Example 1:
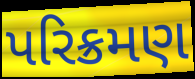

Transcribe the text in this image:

પરિક્રમણ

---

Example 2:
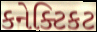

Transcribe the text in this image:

કનેક્ટિકટ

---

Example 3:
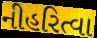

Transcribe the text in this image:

નીહરિત્વા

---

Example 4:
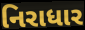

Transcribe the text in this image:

નિરાધાર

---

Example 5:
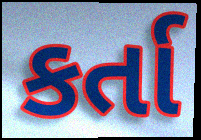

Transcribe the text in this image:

કર્તા